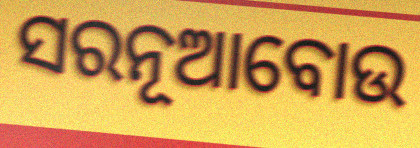
ସରନୂଆବୋଉ